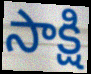
సాక్షి